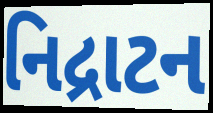
નિદ્રાટન